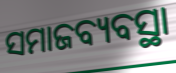
ସମାଜବ୍ୟବସ୍ଥା